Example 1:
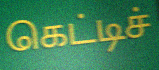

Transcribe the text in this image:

கெட்டிச்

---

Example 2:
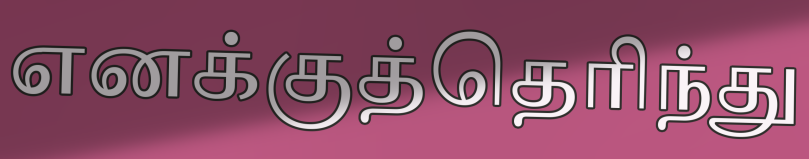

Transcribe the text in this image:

எனக்குத்தெரிந்து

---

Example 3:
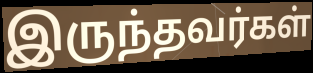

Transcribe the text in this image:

இருந்தவர்கள்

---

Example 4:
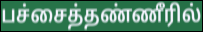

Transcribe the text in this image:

பச்சைத்தண்ணீரில்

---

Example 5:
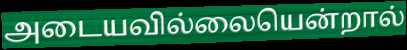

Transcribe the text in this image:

அடையவில்லையென்றால்